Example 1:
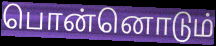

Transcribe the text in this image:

பொன்னொடும்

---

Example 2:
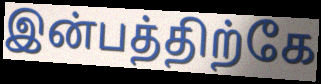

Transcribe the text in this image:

இன்பத்திற்கே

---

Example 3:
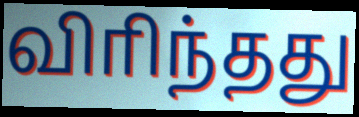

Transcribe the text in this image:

விரிந்தது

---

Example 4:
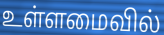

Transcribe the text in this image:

உள்ளமைவில்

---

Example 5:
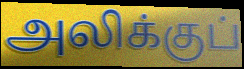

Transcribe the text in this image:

அலிக்குப்